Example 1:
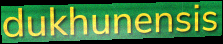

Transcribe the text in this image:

dukhunensis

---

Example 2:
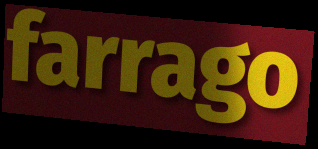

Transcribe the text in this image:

farrago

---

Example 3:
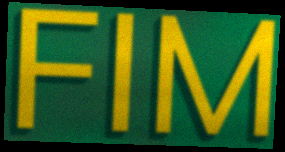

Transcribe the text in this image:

FIM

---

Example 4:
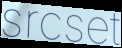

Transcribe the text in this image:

srcset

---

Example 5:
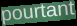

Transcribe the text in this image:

pourtant